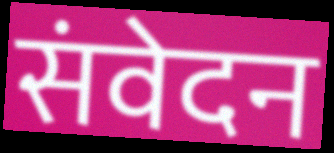
संवेदन